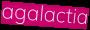
agalactia